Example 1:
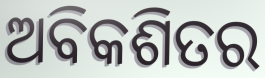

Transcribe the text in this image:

ଅବିକଶିତର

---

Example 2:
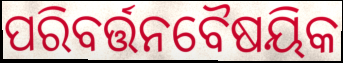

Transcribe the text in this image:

ପରିବର୍ତ୍ତନବୈଷୟିକ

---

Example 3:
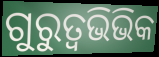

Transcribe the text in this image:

ଗୁରୁତ୍ଵଭିଭିକ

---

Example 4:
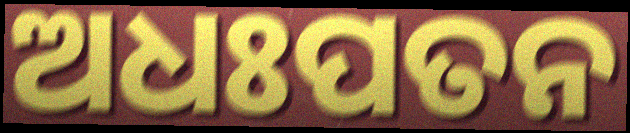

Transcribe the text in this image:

ଅଧଃପତନ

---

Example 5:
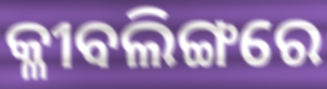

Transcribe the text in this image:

କ୍ଳୀବଲିଙ୍ଗରେ